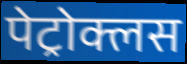
पेट्रोक्लस